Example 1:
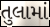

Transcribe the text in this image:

તુલામાં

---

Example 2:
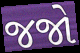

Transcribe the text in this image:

જજો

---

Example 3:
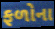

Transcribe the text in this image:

ફળોના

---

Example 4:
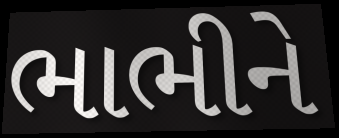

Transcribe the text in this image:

ભાભીને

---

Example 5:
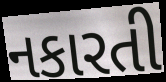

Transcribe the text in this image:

નકારતી